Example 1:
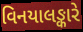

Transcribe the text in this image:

વિનયાલઙ્કારે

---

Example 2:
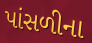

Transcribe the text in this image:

પાંસળીના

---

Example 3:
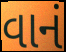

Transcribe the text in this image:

વાનં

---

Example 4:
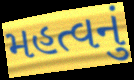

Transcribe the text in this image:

મહત્વનું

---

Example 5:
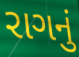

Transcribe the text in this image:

રાગનું